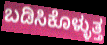
ಬಡಿಸಿಕೊಳ್ಳುತ್ತ